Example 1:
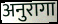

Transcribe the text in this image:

अनुरागा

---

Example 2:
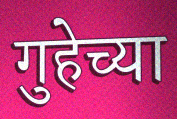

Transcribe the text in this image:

गुहेच्या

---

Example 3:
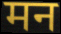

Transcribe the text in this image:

मन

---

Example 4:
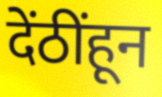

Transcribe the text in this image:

देंठींहून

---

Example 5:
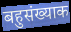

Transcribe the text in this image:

बहुसंख्याक